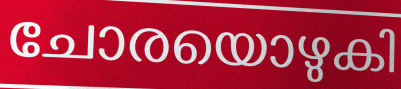
ചോരയൊഴുകി